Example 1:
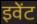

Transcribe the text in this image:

इवेंट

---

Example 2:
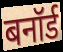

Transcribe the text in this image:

बनॉर्ड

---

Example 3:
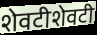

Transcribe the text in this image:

शेवटीशेवटी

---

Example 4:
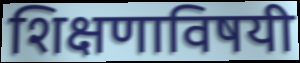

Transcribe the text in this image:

शिक्षणाविषयी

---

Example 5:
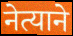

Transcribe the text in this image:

नेत्याने